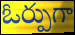
ఓర్పుగా